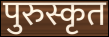
पुरुस्कृत